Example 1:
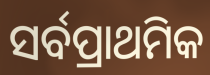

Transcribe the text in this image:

ସର୍ବପ୍ରାଥମିକ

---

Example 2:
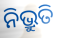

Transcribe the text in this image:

ନିଭ୍ରୁତି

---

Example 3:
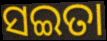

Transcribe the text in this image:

ସଇତା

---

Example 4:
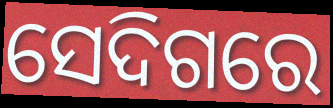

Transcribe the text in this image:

ସେଦିଗରେ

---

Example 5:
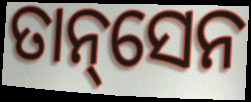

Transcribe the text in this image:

ତାନ୍‌ସେନ